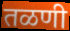
तळणी